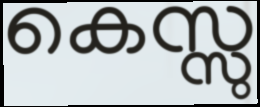
കെസ്സു